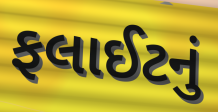
ફલાઈટનું